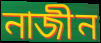
নাজীন